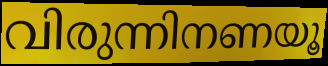
വിരുന്നിനണയൂ